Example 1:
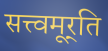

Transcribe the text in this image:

सत्त्वमूर्ति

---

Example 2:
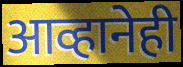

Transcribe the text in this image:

आव्हानेही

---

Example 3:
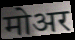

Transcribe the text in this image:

मोअर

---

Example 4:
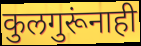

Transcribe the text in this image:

कुलगुरूंनाही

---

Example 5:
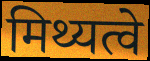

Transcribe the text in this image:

मिथ्यत्वे